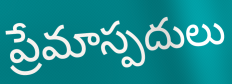
ప్రేమాస్పదులు